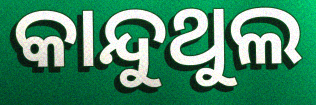
କାନ୍ଦୁଥୁଲ